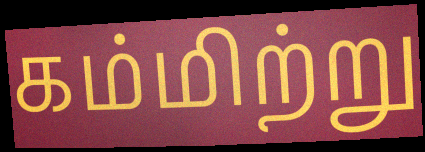
கம்மிற்று